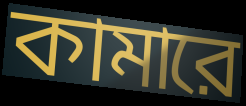
কামারে